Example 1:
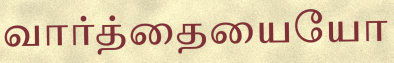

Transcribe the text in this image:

வார்த்தையையோ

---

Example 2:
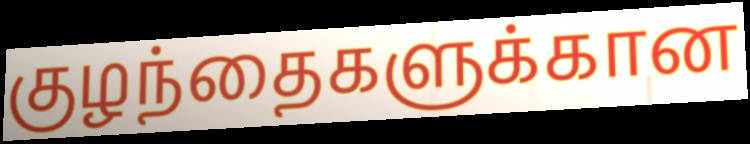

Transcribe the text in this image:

குழந்தைகளுக்கான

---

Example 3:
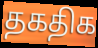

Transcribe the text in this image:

தகதிக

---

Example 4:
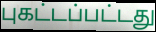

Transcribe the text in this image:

புகட்டப்பட்டது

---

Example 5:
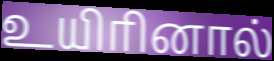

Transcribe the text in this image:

உயிரினால்